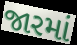
જારમાં